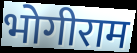
भोगीराम